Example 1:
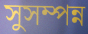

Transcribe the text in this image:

সুসম্পন্ন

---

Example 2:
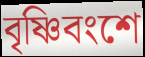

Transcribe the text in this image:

বৃষ্ণিবংশে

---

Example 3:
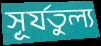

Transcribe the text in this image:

সূর্যতুল্য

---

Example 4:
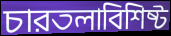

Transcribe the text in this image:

চারতলাবিশিষ্ট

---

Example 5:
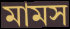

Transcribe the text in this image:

মামস